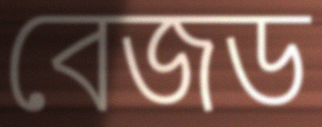
বেজড